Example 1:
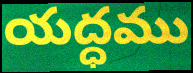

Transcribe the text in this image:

యద్ధము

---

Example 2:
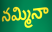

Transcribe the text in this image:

నమ్మినా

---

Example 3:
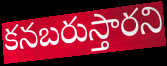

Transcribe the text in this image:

కనబరుస్తారని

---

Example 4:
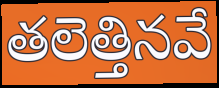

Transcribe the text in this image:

తలెత్తినవే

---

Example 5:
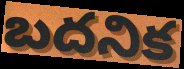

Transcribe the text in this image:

బదనిక